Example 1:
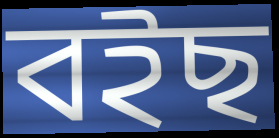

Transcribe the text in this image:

বইছ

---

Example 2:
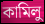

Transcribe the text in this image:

কামিলু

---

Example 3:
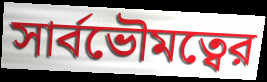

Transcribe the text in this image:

সার্বভৌমত্বের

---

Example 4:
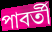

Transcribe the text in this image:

পাবর্তী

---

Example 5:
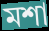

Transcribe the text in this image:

মশা